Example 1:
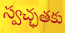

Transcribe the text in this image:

స్వచ్ఛతకు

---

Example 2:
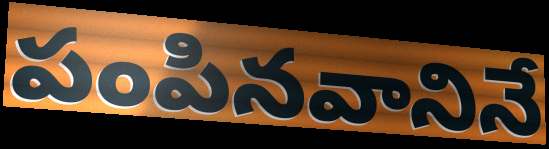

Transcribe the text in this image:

పంపినవానినే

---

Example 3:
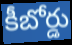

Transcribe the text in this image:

కీబోర్డు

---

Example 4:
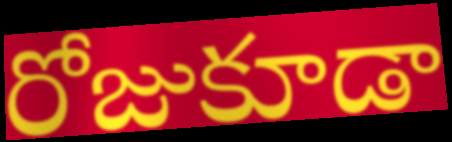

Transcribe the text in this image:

రోజుకూడా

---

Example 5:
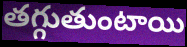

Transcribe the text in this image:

తగ్గుతుంటాయి